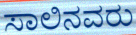
ಸಾಲಿನವರು